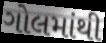
ગોલમાંથી